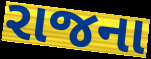
રાજના